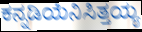
ಕನ್ನಡಿಯೆನಿಸಿತ್ತಯ್ಯ